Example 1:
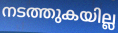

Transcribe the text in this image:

നടത്തുകയില്ല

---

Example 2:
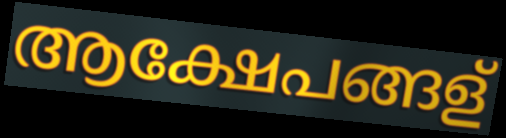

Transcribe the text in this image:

ആക്ഷേപങ്ങള്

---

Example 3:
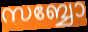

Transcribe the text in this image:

സബ്ബോ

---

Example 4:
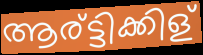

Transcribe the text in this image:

ആര്ട്ടിക്കിള്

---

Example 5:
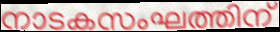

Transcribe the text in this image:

നാടകസംഘത്തിന്